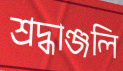
শ্রদ্ধাঞ্জলি